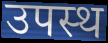
उपस्थ